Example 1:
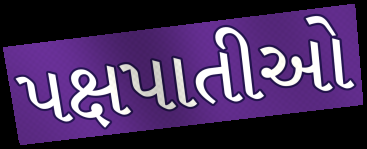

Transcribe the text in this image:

પક્ષપાતીઓ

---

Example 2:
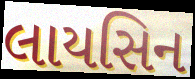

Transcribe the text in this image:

લાયસિન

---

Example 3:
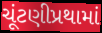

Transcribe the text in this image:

ચૂંટણીપ્રથામાં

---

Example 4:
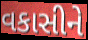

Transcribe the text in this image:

વકાસીને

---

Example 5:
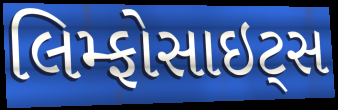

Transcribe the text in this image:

લિમ્ફોસાઇટ્સ